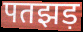
पतझड़